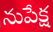
నుపేక్ష